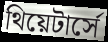
থিয়েটার্সে